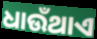
ଧାଉଁଥାଏ